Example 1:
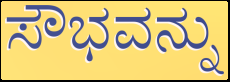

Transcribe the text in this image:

ಸೌಭವನ್ನು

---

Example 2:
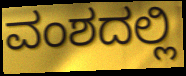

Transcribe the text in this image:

ವಂಶದಲ್ಲಿ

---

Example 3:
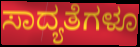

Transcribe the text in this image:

ಸಾದ್ಯತೆಗಳೂ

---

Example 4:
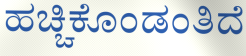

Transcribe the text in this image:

ಹಚ್ಚಿಕೊಂಡಂತಿದೆ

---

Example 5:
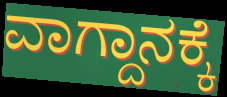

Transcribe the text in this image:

ವಾಗ್ದಾನಕ್ಕೆ